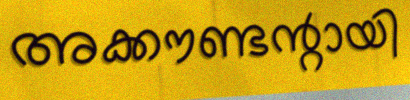
അക്കൗണ്ടന്റായി